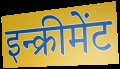
इन्क्रीमेंट